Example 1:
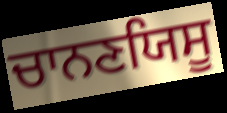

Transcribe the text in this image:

ਚਾਨਣਯਿਸੂ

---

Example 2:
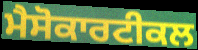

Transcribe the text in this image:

ਮੈਸੋਕਾਰਟੀਕਲ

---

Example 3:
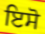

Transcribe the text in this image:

ਇਸੋ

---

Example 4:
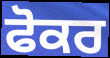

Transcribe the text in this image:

ਫੋਕਰ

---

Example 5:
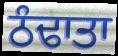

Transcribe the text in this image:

ਠੰਢਾਤਾ